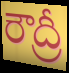
రౌద్రీ